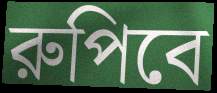
রুপিবে